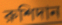
রুশিদান